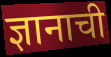
ज्ञानाची